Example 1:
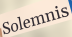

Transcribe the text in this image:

Solemnis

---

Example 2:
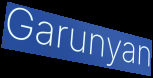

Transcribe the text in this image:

Garunyan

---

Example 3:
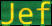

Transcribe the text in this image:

Jef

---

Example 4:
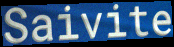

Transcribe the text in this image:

Saivite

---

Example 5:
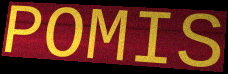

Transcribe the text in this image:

POMIS